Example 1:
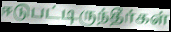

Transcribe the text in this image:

ஈடுபட்டிருந்தீர்கள்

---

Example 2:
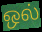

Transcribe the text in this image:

ஒல்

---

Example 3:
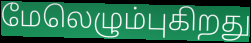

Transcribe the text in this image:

மேலெழும்புகிறது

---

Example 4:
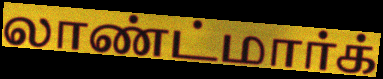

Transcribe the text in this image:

லாண்ட்மார்க்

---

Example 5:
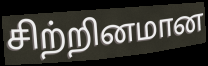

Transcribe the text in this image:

சிற்றினமான